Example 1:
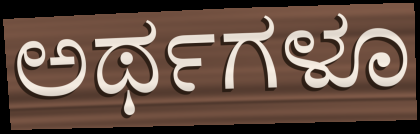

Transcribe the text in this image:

ಅರ್ಥಗಳೂ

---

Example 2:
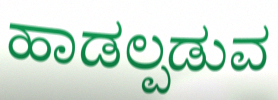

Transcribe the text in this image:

ಹಾಡಲ್ಪಡುವ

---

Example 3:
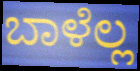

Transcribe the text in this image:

ಬಾಳೆಲ್ಲ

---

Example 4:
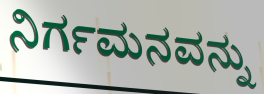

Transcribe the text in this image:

ನಿರ್ಗಮನವನ್ನು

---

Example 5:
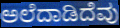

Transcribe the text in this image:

ಅಲೆದಾಡಿದೆವು